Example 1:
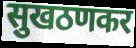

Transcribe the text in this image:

सुखठणकर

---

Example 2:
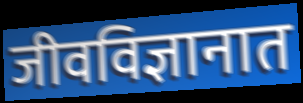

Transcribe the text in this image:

जीवविज्ञानात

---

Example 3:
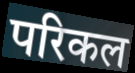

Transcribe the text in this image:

परिकल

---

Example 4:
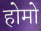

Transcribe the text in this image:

होमो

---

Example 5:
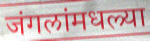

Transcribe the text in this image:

जंगलांमधल्या